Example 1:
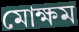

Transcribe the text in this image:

মোক্ষম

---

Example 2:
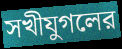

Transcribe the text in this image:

সখীযুগলের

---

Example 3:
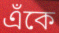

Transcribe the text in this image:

এঁকে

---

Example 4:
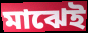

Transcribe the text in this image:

মাঝেই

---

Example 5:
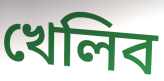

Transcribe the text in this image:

খেলিব